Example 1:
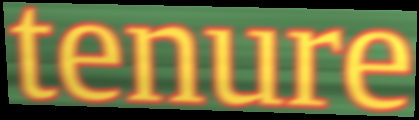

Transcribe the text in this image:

tenure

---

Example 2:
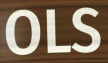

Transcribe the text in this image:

OLS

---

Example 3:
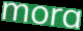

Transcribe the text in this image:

mora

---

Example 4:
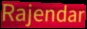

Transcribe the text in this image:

Rajendar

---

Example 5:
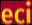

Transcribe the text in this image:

eci